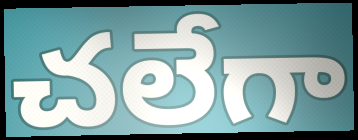
చలేగా